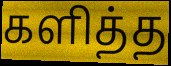
களித்த